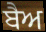
ਬੈਅ